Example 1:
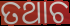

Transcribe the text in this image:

ତଥାଚ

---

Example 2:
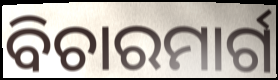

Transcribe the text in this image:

ବିଚାରମାର୍ଗ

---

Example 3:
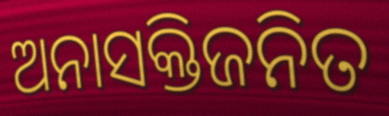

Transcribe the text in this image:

ଅନାସକ୍ତିଜନିତ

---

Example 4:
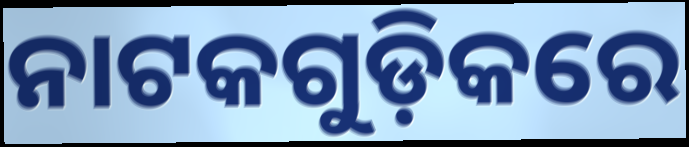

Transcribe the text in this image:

ନାଟକଗୁଡ଼ିକରେ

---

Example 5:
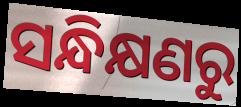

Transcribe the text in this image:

ସନ୍ଧିକ୍ଷଣରୁ